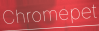
Chromepet